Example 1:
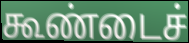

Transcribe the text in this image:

கூண்டைச்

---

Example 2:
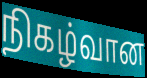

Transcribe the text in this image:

நிகழ்வான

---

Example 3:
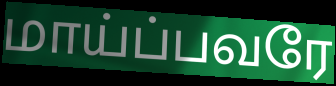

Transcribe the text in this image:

மாய்ப்பவரே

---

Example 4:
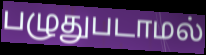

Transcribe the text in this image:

பழுதுபடாமல்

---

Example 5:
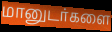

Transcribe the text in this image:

மானுடர்களை